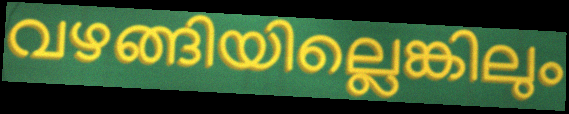
വഴങ്ങിയില്ലെങ്കിലും